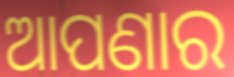
ଆପଣାର